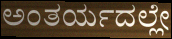
ಅಂತರ್ಯದಲ್ಲೇ